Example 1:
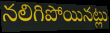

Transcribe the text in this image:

నలిగిపోయినట్లు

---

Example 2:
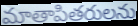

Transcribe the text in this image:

మాతాపితరులను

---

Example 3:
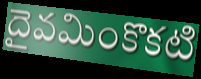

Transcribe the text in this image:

దైవమింకొకటి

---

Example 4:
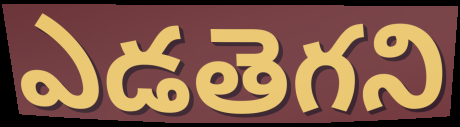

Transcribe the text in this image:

ఎడతెగని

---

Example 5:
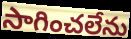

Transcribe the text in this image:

సాగించలేను